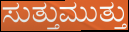
ಸುತ್ತುಮುತ್ತು